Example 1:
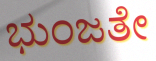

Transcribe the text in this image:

ಭುಂಜತೇ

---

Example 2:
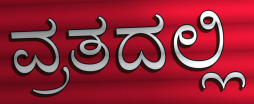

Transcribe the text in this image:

ವ್ರತದಲ್ಲಿ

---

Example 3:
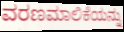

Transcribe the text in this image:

ವರಣಮಾಲಿಕೆಯನ್ನು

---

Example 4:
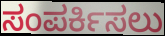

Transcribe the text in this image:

ಸಂಪರ್ಕಿಸಲು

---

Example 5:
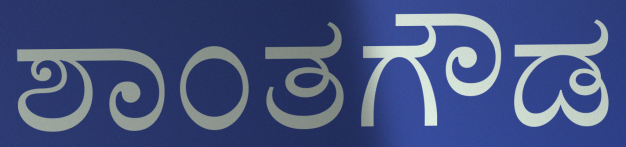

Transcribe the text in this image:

ಶಾಂತಗೌಡ